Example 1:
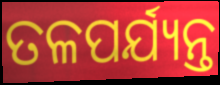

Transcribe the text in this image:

ତଳପର୍ଯ୍ୟନ୍ତ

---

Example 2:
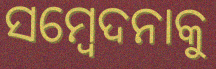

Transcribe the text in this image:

ସମ୍ବେଦନାକୁ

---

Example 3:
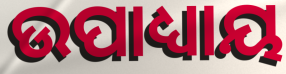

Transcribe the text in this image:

ଉପାଧ୍ୟାୟ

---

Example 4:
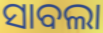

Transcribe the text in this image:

ସାବଲା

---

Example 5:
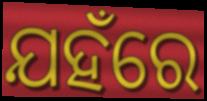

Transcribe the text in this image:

ଯହଁରେ